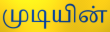
முடியின்